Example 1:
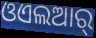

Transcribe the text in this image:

ଓଏଲଆର୍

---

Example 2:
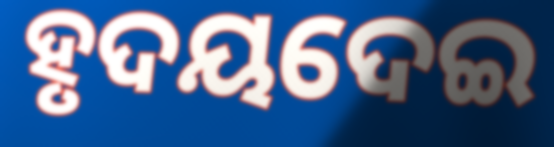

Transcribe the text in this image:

ହୃଦୟଦେଇ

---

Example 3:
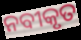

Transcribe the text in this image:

ନବୀକୃତ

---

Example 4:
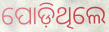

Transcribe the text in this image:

ପୋଡ଼ିଥିଲେ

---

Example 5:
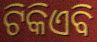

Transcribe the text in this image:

ଟିକିଏବି